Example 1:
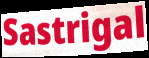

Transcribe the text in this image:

Sastrigal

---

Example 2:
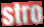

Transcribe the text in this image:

stro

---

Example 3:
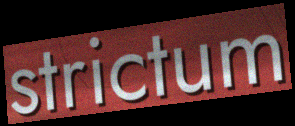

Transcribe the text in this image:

strictum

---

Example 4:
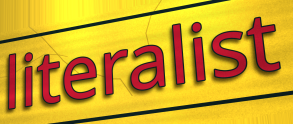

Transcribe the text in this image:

literalist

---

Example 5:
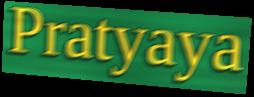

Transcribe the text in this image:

Pratyaya